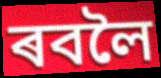
ৰবলৈ